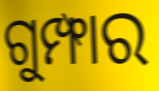
ଗୁମ୍ଫାର